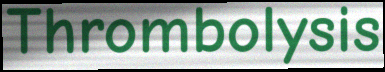
Thrombolysis